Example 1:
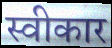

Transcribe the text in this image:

स्वीकार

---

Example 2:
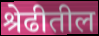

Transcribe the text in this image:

श्रेढीतील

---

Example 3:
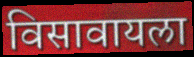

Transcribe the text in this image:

विसावायला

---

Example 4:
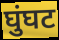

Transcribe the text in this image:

घुंघट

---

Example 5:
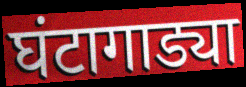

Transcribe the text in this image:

घंटागाड्या